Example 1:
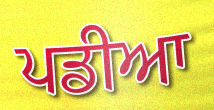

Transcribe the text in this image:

ਪਡੀਆ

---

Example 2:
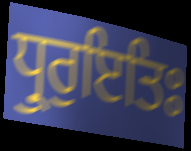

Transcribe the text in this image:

ਧ੍ਰੁਰੁਇਤਿਃ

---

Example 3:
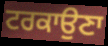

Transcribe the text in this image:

ਟਰਕਾਉਣਾ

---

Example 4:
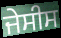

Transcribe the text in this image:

ਜੇਸੀਸ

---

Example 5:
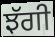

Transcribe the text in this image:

ਝੱਗੀ